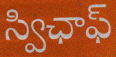
స్విఛాఫ్